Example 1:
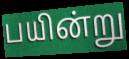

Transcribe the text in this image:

பயின்று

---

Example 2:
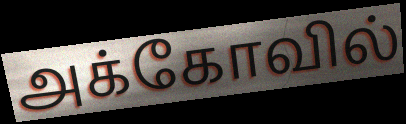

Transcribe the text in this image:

அக்கோவில்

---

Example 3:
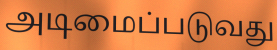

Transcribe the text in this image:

அடிமைப்படுவது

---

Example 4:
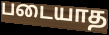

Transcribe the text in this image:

படையாத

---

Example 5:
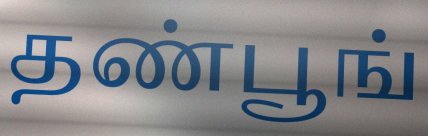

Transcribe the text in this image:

தண்பூங்